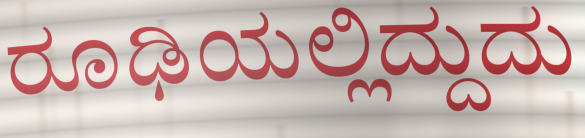
ರೂಢಿಯಲ್ಲಿದ್ದುದು